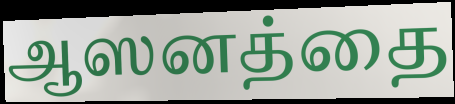
ஆஸனத்தை